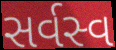
સર્વસ્વ